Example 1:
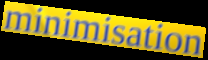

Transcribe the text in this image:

minimisation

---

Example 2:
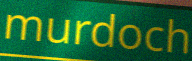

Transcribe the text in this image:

murdoch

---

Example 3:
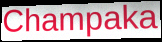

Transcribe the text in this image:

Champaka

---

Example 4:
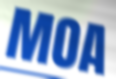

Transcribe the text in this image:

MOA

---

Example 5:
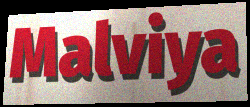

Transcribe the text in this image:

Malviya